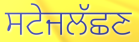
ਸਟੇਜਲੱਛਣ